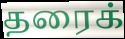
தரைக்